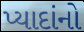
પ્યાદાંનો